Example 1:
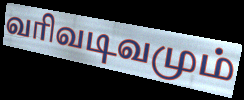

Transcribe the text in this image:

வரிவடிவமும்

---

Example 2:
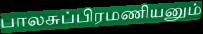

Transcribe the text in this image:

பாலசுப்பிரமணியனும்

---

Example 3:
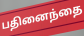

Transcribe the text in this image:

பதினைந்தை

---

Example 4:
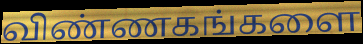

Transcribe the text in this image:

விண்ணகங்களை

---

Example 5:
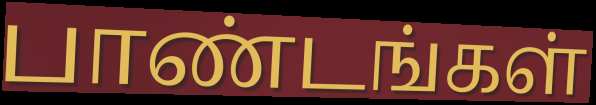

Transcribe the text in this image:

பாண்டங்கள்